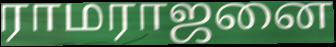
ராமராஜனை